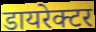
डायरेक्टर